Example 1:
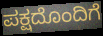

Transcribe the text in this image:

ಪಕ್ಷದೊಂದಿಗೆ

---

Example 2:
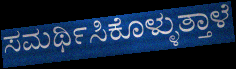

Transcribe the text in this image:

ಸಮರ್ಥಿಸಿಕೊಳ್ಳುತ್ತಾಳೆ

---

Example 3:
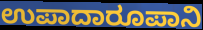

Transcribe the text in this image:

ಉಪಾದಾರೂಪಾನಿ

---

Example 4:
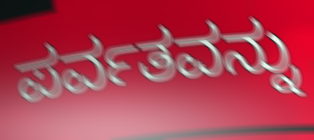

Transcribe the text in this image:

ಪರ್ವತವನ್ನು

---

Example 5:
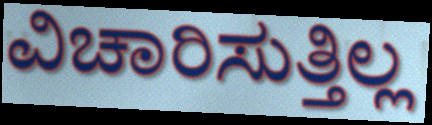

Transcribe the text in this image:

ವಿಚಾರಿಸುತ್ತಿಲ್ಲ